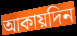
আকায়দিন